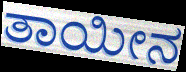
ತಾಯೀನ